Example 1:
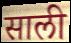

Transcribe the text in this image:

साली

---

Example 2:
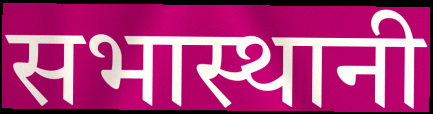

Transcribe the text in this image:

सभास्थानी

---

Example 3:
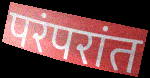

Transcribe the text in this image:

परंपरांत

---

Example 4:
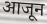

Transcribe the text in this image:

आजून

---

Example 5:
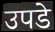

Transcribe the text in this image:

उपडे